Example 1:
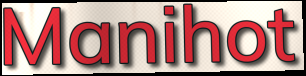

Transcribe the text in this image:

Manihot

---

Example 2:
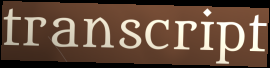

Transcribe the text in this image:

transcript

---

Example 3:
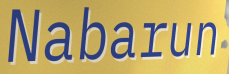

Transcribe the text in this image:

Nabarun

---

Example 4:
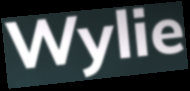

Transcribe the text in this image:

Wylie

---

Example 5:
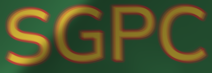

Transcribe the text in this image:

SGPC